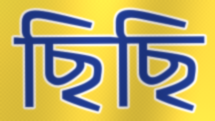
ছিছি